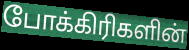
போக்கிரிகளின்